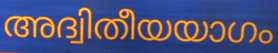
അദ്വിതീയയാഗം